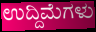
ಉದ್ದಿಮೆಗಳು